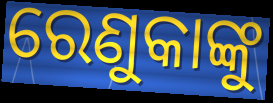
ରେଣୁକାଙ୍କୁ